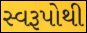
સ્વરૂપોથી